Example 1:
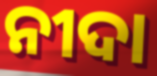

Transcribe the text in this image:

ନୀଦା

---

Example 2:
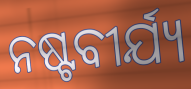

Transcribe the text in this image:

ନଷ୍ଟବୀର୍ଯ୍ୟ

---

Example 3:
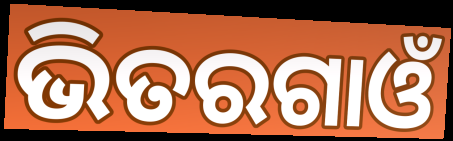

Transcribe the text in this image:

ଭିତରଗାଓଁ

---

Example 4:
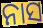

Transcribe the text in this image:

ନାସ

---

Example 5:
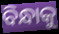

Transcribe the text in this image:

ବିନ୍ଧାକୁ